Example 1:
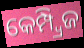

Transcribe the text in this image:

କେମ୍ପ୍ୱ୍ରିଜ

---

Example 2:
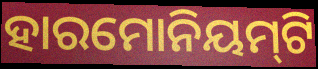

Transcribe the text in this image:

ହାରମୋନିୟମ୍‍ଟି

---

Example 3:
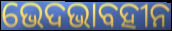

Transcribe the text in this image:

ଭେଦଭାବହୀନ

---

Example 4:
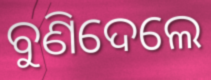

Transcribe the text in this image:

ବୁଣିଦେଲେ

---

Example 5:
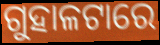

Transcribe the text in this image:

ଗୁହାଳଟାରେ